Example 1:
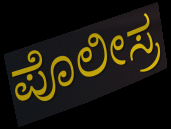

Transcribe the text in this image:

ಪೊಲೀಸ್ರ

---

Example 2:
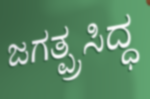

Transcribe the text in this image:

ಜಗತ್ಪ್ರಸಿದ್ಧ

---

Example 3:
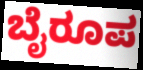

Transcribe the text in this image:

ಬೈರೂಪ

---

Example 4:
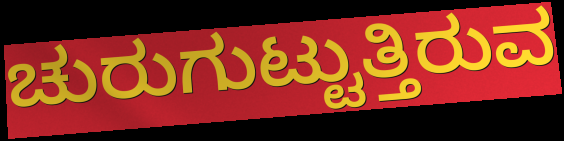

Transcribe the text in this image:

ಚುರುಗುಟ್ಟುತ್ತಿರುವ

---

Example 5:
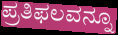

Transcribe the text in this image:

ಪ್ರತಿಫಲವನ್ನೂ